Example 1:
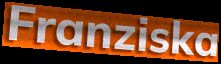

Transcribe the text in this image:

Franziska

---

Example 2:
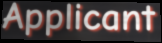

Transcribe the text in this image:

Applicant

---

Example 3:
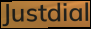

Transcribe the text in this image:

Justdial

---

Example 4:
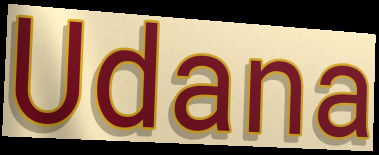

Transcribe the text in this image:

Udana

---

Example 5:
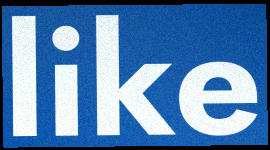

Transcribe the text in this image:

like